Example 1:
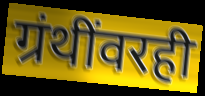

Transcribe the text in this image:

ग्रंथींवरही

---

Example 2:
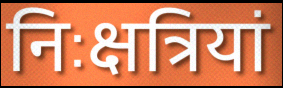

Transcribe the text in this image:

निःक्षत्रियां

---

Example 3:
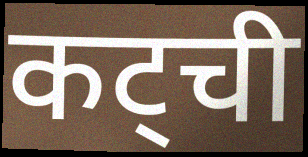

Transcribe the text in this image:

कट्ची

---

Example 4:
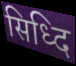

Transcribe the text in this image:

सिध्दि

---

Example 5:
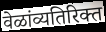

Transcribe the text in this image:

वेळांव्यतिरिक्त